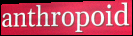
anthropoid